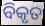
ବିକୃତ